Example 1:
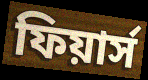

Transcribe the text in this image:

ফিয়ার্স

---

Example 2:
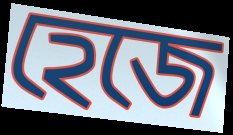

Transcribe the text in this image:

হেজে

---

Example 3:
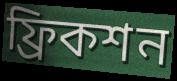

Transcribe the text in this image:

ফ্রিকশন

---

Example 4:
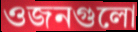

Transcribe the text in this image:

ওজনগুলো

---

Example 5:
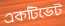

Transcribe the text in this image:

একটিভেট